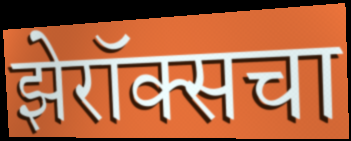
झेरॉक्सचा